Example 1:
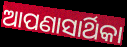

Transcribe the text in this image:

ଆପଣାସାର୍ଥିକା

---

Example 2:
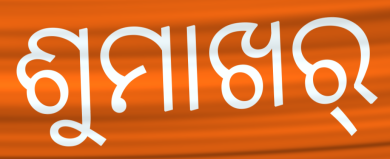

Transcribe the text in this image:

ଶୁମାଖର୍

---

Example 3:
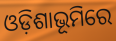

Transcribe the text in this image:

ଓଡ଼ିଶାଭୂମିରେ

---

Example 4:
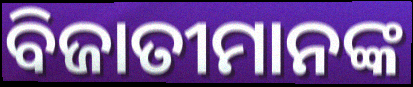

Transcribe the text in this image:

ବିଜାତୀମାନଙ୍କ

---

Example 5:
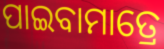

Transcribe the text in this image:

ପାଇବାମାତ୍ରେ